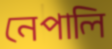
নেপালি